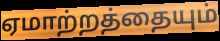
ஏமாற்றத்தையும்